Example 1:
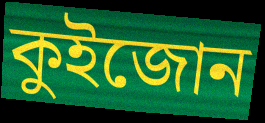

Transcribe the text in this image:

কুইজোন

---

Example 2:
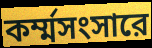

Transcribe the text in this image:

কর্ম্মসংসারে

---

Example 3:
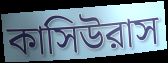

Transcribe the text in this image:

কাসিউরাস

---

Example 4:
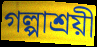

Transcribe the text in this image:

গল্পাশ্রয়ী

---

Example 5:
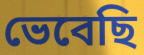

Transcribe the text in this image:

ভেবেছি